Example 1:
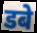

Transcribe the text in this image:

डबे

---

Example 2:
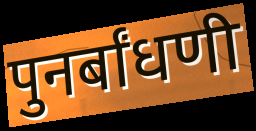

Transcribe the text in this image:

पुनर्बांधणी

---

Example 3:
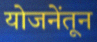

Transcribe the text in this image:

योजनेंतून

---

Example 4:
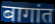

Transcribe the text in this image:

बागांत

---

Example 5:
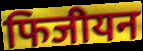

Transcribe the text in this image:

फिजीयन